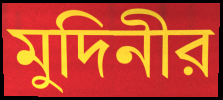
মুদিনীর